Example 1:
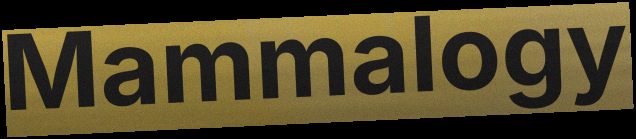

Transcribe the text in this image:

Mammalogy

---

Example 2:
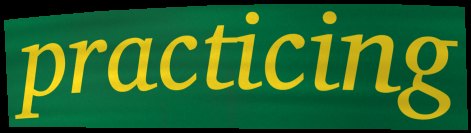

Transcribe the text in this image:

practicing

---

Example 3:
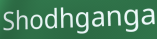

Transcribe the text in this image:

Shodhganga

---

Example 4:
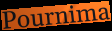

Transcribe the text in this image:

Pournima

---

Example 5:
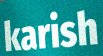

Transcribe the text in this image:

karish